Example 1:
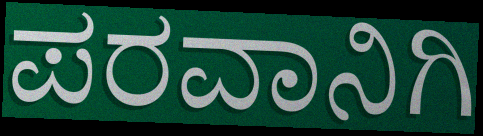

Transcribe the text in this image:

ಪರವಾನಿಗಿ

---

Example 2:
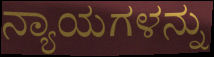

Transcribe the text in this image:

ನ್ಯಾಯಗಳನ್ನು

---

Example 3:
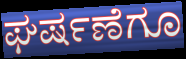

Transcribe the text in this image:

ಘರ್ಷಣೆಗೂ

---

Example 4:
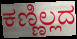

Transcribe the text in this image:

ಕಣ್ಣಿಲ್ಲದ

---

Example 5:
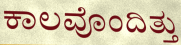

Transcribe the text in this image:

ಕಾಲವೊಂದಿತ್ತು